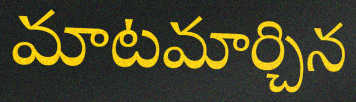
మాటమార్చిన